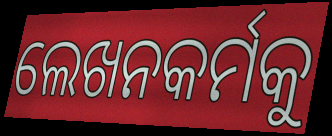
ଲେଖନକର୍ମକୁ